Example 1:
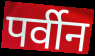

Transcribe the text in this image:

पर्वीन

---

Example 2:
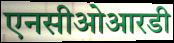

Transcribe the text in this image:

एनसीओआरडी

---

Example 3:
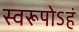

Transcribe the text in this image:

स्वरूपोऽहं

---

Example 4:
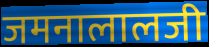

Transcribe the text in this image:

जमनालालजी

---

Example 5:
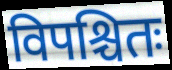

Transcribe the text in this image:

विपश्चितः